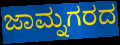
ಜಾಮ್ನಗರದ